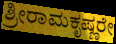
ಶ್ರೀರಾಮಕೃಷ್ಣರೇ